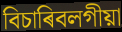
বিচাৰিবলগীয়া